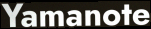
Yamanote